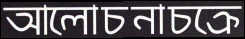
আলোচনাচক্রে